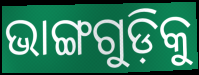
ଭାଙ୍ଗଗୁଡ଼ିକୁ